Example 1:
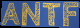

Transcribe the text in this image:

ANTF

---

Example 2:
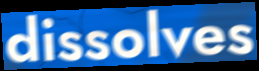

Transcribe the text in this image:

dissolves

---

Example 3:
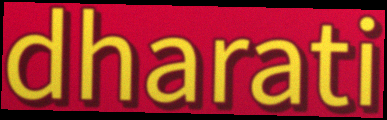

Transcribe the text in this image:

dharati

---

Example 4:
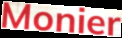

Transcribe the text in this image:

Monier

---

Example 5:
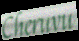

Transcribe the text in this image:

Cheruvu